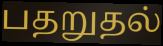
பதறுதல்